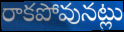
రాకపోవునట్లు